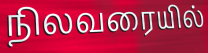
நிலவரையில்